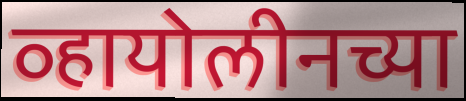
व्हायोलीनच्या